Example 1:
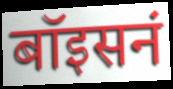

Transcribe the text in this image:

बॉइसनं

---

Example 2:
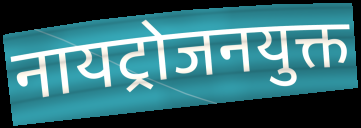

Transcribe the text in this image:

नायट्रोजनयुक्त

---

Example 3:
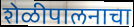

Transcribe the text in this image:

शेळीपालनाचा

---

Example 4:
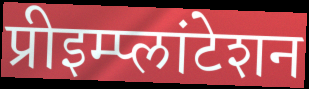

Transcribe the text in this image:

प्रीइम्प्लांटेशन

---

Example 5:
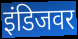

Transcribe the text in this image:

इंडिजवर